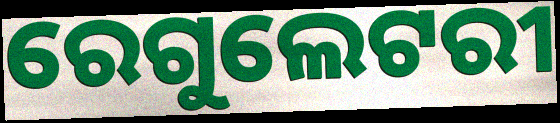
ରେଗୁଲେଟରୀ